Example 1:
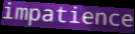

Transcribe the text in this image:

impatience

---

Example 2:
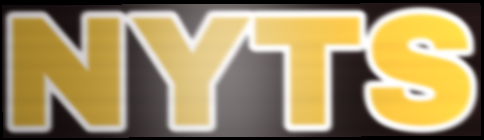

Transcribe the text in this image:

NYTS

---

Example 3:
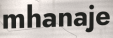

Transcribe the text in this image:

mhanaje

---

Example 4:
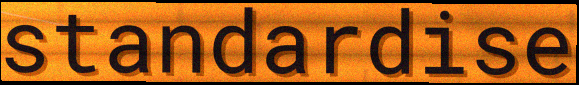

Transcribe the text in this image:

standardise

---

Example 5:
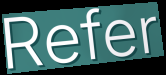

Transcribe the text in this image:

Refer